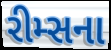
રીમ્સના